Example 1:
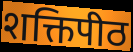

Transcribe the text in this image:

शक्तिपीठ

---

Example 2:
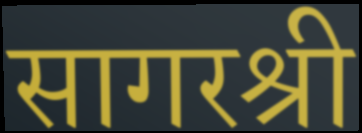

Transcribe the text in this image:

सागरश्री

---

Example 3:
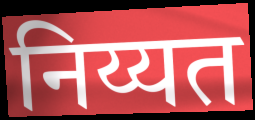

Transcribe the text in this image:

निय्यत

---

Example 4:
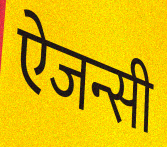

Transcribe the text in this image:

ऐजन्सी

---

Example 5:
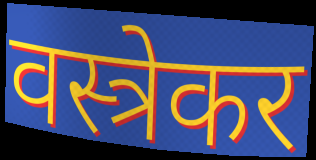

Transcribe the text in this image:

वस्त्रेकर